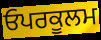
ਓਪਰਕੂਲਮ